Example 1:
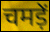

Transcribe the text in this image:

चमड़ें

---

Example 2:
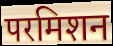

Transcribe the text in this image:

परमिशन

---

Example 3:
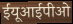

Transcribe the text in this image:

ईयूआईपीओ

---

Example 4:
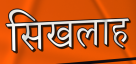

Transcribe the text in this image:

सिखलाह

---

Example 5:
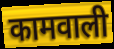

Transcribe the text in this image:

कामवाली